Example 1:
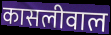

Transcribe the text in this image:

कासलीवाल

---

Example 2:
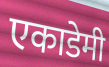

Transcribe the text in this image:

एकाडेमी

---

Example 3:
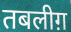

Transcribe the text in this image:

तबलीग़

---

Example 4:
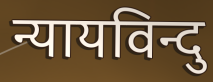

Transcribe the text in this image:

न्यायविन्दु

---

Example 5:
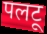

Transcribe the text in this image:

पलटू